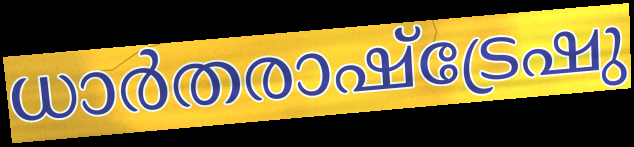
ധാർതരാഷ്ട്രേഷു